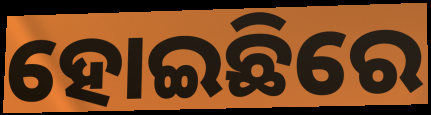
ହୋଇଛିରେ